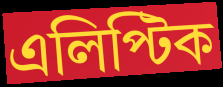
এলিপ্টিক